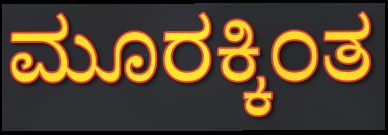
ಮೂರಕ್ಕಿಂತ